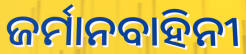
ଜର୍ମାନବାହିନୀ